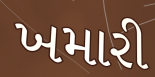
ખમારી